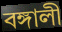
বঙ্গালী